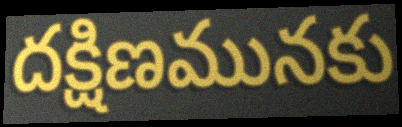
దక్షిణమునకు